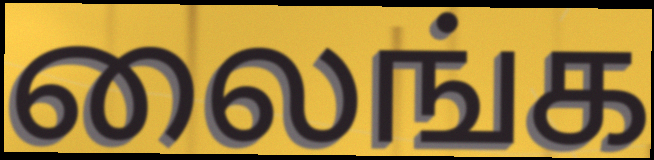
லைங்க